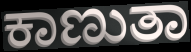
ಕಾಣುತಾ